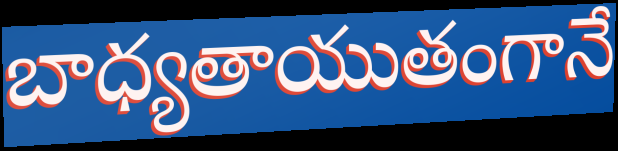
బాధ్యతాయుతంగానే